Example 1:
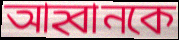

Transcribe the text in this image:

আহ্বানকে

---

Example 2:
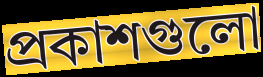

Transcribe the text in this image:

প্রকাশগুলো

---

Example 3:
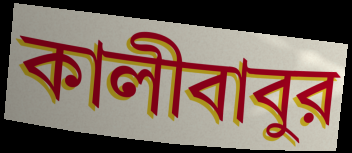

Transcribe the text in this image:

কালীবাবুর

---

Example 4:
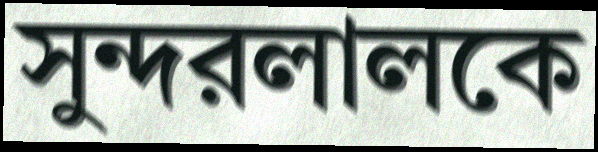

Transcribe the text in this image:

সুন্দরলালকে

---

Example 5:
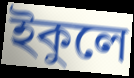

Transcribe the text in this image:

ইকুলে